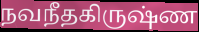
நவநீதகிருஷ்ண